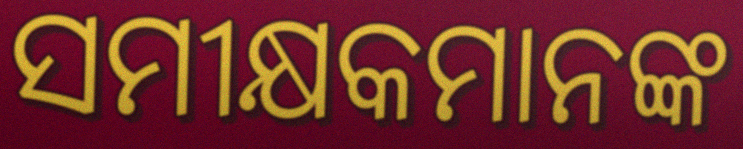
ସମୀକ୍ଷକମାନଙ୍କ